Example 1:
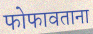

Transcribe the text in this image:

फोफावताना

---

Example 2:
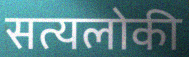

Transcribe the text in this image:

सत्यलोकी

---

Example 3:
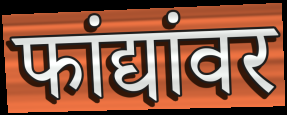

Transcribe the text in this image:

फांद्यांवर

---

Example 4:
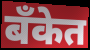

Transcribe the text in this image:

बँकेत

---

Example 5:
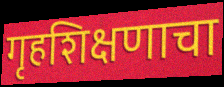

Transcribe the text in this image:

गृहशिक्षणाचा